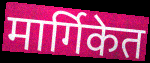
मार्गिकेत